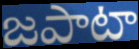
జపాటా